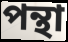
পন্থা